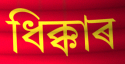
ধিক্কাৰ